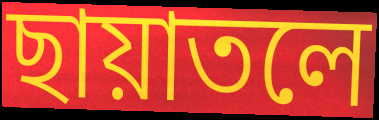
ছায়াতলে